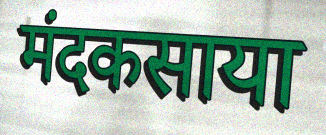
मंदकसाया